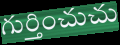
గుర్తించుచు